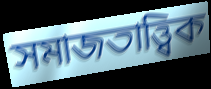
সমাজতাত্ত্বিক